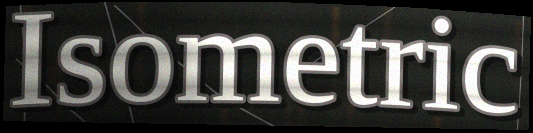
Isometric